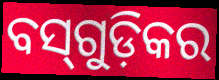
ବସ୍‌ଗୁଡ଼ିକର